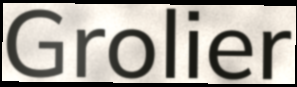
Grolier